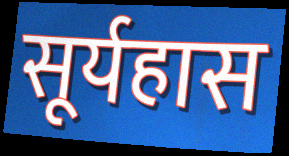
सूर्यहास